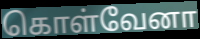
கொள்வேனா